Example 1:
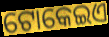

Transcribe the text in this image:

ଟୋକେଇଏ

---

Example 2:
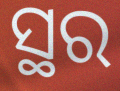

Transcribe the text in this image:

ସ୍ଥର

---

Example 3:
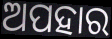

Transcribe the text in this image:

ଅପହାର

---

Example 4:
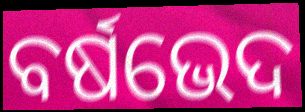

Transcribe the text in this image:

ବର୍ଷଭେଦ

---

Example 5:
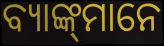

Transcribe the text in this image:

ବ୍ୟାଙ୍କ୍‌ମାନେ